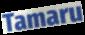
Tamaru